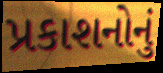
પ્રકાશનોનું